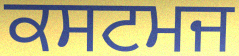
ਕਸਟਮਜ